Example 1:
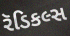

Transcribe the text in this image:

રૅડિકલ્સ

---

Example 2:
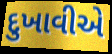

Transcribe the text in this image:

દુખાવીએ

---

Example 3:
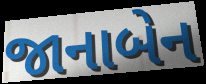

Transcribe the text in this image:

જાનાબેન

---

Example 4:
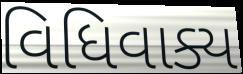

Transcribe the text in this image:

વિધિવાક્ય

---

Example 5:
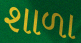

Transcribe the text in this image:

શાળા